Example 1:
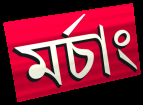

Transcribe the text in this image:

মৰ্চাং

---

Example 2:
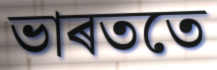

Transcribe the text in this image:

ভাৰততে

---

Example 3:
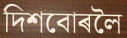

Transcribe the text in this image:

দিশবোৰলৈ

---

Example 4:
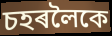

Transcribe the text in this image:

চহৰলৈকে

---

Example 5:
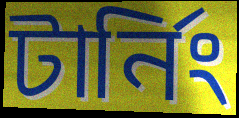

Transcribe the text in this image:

টাৰ্নিং